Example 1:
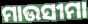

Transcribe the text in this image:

ମାଉସୀମା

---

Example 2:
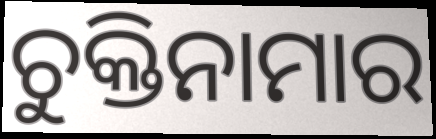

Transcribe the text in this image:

ଚୁକ୍ତିନାମାର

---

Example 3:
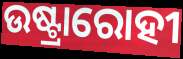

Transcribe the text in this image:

ଉଷ୍ଟ୍ରାରୋହୀ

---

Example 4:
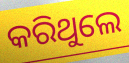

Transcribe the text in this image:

କରିଥୁଲେ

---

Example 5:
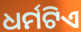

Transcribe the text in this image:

ଧର୍ମଟିଏ